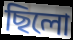
ছিলো